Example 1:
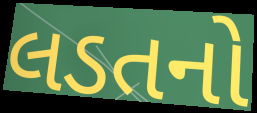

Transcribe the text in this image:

લડતનો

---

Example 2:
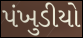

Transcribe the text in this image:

પંખુડીયો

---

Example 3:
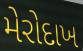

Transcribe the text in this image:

મેરોદાખ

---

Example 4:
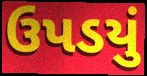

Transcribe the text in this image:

ઉપડયું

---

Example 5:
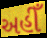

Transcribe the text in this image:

અહીઁ